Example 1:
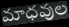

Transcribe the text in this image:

మాధవుల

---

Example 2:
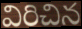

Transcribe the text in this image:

విరిచిన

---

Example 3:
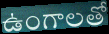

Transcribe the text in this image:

ఉంగాలతో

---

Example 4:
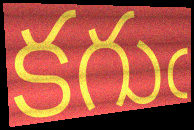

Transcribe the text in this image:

కగుఁ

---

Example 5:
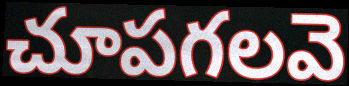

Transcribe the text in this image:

చూపగలవె